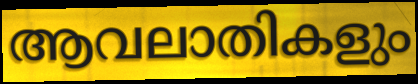
ആവലാതികളും